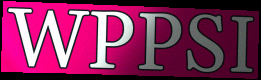
WPPSI